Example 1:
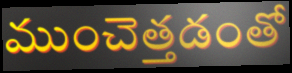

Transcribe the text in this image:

ముంచెత్తడంతో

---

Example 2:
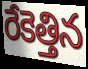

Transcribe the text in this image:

రేకెత్తిన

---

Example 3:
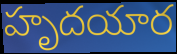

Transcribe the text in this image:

హృదయార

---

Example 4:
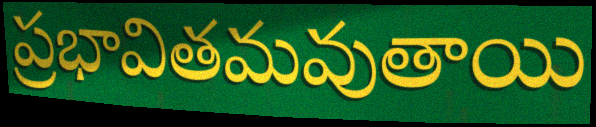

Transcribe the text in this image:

ప్రభావితమవుతాయి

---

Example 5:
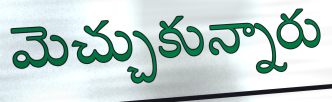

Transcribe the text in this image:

మెచ్చుకున్నారు